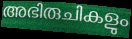
അഭിരുചികളും